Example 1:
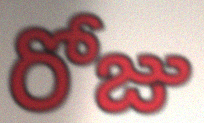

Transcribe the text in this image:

రోజు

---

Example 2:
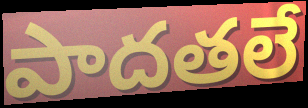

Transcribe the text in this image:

పాదతలే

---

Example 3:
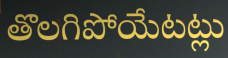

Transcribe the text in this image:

తొలగిపోయేటట్లు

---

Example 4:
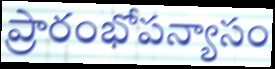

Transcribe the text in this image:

ప్రారంభోపన్యాసం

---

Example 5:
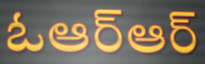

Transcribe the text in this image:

ఓఆర్ఆర్